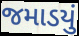
જમાડયું